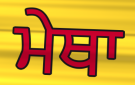
ਮੇਥਾ